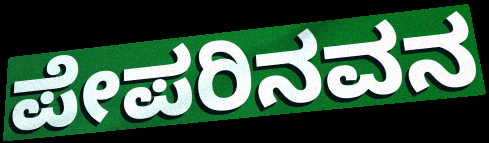
ಪೇಪರಿನವನ